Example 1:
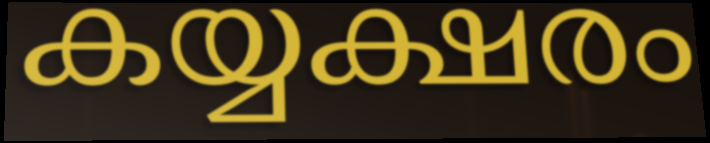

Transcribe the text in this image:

കയ്യക്ഷരം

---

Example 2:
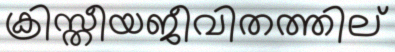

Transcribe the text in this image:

ക്രിസ്തീയജീവിതത്തില്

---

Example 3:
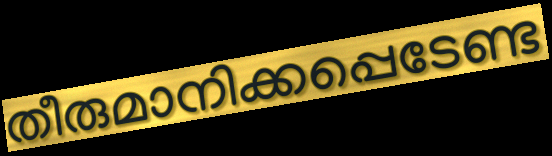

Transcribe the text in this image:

തീരുമാനിക്കപ്പെടേണ്ട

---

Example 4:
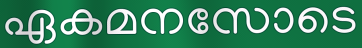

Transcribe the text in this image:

ഏകമനസോടെ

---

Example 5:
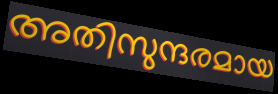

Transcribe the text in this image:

അതിസുന്ദരമായ